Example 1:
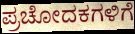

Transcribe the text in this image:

ಪ್ರಚೋದಕಗಳಿಗೆ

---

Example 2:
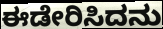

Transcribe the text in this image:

ಈಡೇರಿಸಿದನು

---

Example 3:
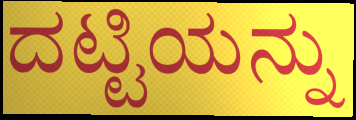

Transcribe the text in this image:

ದಟ್ಟಿಯನ್ನು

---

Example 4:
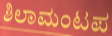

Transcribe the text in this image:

ಶಿಲಾಮಂಟಪ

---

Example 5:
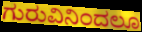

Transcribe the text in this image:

ಗುರುವಿನಿಂದಲೂ